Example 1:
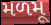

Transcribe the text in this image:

મળમૂ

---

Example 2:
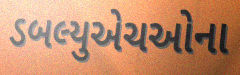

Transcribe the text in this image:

ડબલ્યુએચઓના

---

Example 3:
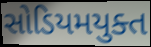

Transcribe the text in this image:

સોડિયમયુક્ત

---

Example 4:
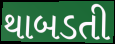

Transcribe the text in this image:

થાબડતી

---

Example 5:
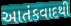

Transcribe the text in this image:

આતંકવાદથી